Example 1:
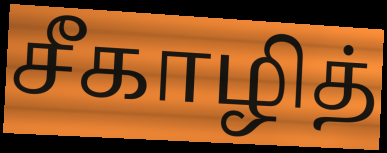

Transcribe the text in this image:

சீகாழித்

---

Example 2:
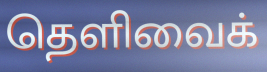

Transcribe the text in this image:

தெளிவைக்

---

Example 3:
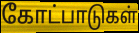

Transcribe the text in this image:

கோட்பாடுகள்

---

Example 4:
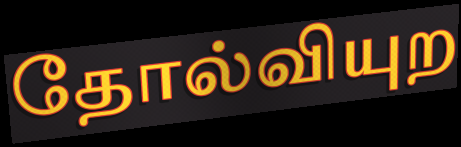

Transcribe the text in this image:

தோல்வியுற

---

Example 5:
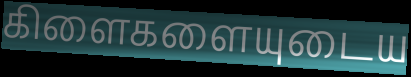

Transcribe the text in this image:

கிளைகளையுடைய